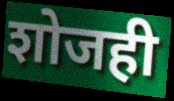
शोजही